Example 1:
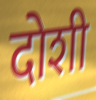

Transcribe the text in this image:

दोशी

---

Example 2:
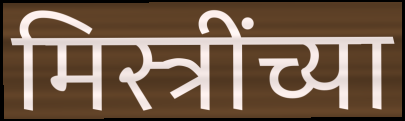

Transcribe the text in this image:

मिस्त्रींच्या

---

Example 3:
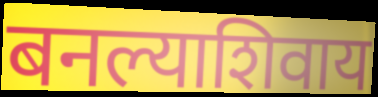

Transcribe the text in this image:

बनल्याशिवाय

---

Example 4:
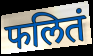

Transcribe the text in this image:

फलितं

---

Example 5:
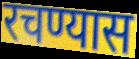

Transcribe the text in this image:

रचण्यास